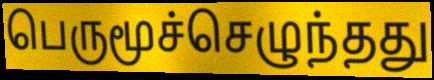
பெருமூச்செழுந்தது